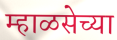
म्हाळसेच्या